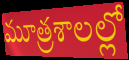
మూత్రశాలల్లో